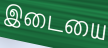
இடையை